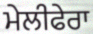
ਮੇਲੀਫੇਰਾ